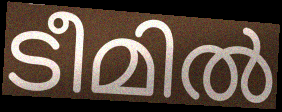
ടീമിൽ